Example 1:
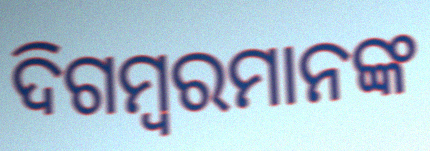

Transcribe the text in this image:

ଦିଗମ୍ବରମାନଙ୍କ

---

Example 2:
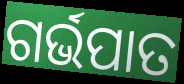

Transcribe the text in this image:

ଗର୍ଭପାତ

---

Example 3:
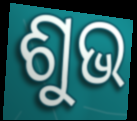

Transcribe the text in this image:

ଶୁଭ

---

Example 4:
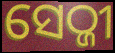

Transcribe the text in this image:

ସେଠ୍ଜୀ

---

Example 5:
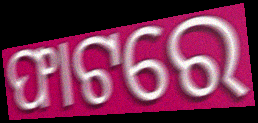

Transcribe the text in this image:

ଫାଟରେ